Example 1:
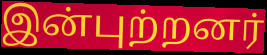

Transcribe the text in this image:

இன்புற்றனர்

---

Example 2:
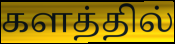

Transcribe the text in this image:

களத்தில்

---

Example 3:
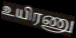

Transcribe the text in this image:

உயிரணு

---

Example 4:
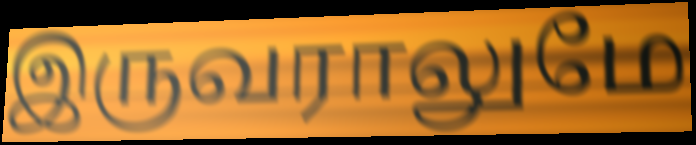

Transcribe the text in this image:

இருவராலுமே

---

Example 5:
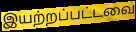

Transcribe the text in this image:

இயற்றப்பட்டவை